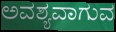
ಅವಶ್ಯವಾಗುವ